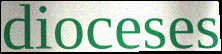
dioceses